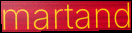
martand